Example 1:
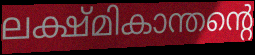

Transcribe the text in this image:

ലക്ഷ്മികാന്തന്റെ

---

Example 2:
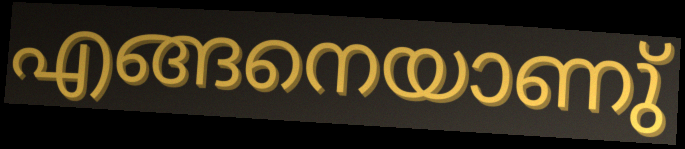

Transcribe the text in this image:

എങ്ങനെയാണു്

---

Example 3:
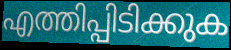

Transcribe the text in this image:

എത്തിപ്പിടിക്കുക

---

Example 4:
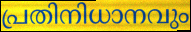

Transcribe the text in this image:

പ്രതിനിധാനവും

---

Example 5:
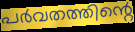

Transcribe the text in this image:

പർവതത്തിന്റെ